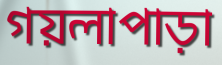
গয়লাপাড়া